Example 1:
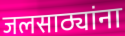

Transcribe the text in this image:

जलसाठ्यांना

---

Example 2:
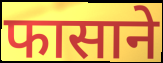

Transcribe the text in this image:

फासाने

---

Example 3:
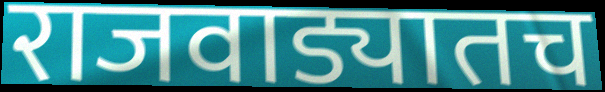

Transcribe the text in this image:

राजवाड्यातच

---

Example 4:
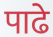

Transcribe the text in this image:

पाढे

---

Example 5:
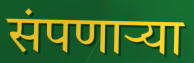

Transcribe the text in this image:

संपणाऱ्या